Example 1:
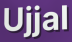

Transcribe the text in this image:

Ujjal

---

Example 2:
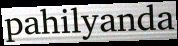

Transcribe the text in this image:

pahilyanda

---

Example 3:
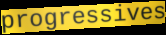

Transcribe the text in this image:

progressives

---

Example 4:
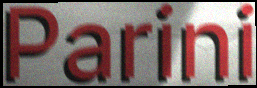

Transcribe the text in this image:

Parini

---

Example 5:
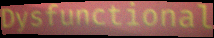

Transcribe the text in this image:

Dysfunctional